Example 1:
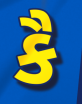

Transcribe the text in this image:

કૈ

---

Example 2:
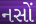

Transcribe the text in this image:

નસોં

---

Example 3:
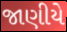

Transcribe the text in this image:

જાણીયે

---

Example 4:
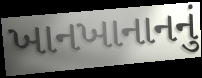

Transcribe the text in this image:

ખાનખાનાનનું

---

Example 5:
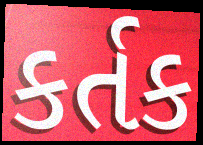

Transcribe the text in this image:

કર્તક